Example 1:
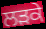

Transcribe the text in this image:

ਲੜਕੇ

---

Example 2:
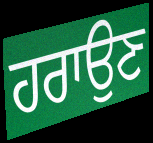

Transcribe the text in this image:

ਹਰਾਉਣ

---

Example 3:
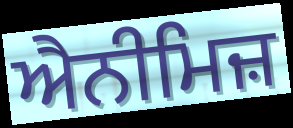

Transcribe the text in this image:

ਐਨੀਮਿਜ਼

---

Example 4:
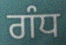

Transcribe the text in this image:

ਗੰਧ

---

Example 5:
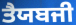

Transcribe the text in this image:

ਤੈਯਬਜੀ